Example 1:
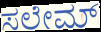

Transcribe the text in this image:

ಸಲೇಮ್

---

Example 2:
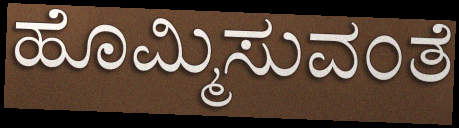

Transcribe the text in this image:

ಹೊಮ್ಮಿಸುವಂತೆ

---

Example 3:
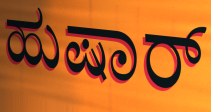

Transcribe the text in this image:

ಹುಷಾರ್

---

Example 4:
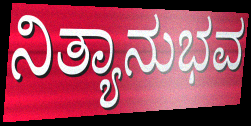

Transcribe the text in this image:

ನಿತ್ಯಾನುಭವ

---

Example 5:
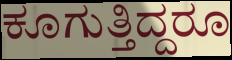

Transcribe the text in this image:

ಕೂಗುತ್ತಿದ್ದರೂ